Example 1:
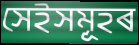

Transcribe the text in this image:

সেইসমূহৰ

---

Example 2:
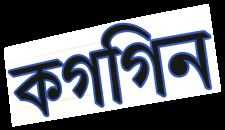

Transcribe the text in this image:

কগগিন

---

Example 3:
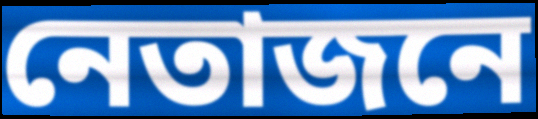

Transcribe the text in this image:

নেতাজনে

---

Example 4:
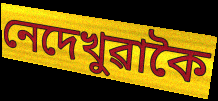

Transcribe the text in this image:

নেদেখুৱাকৈ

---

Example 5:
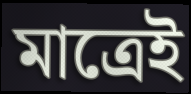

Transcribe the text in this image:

মাত্ৰেই